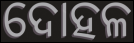
ଦୋହଳ